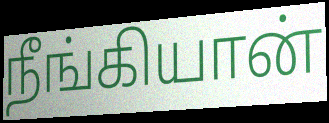
நீங்கியான்